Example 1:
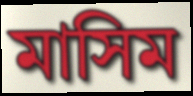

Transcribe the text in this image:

মাসিম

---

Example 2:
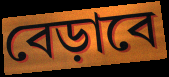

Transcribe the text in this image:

বেড়াবে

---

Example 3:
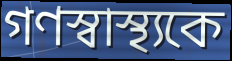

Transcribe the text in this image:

গণস্বাস্থ্যকে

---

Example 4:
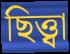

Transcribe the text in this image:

ছিত্ত্বা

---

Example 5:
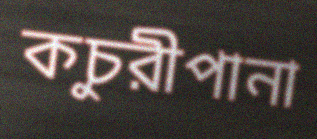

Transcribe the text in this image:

কচুরীপানা